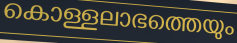
കൊള്ളലാഭത്തെയും